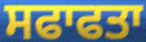
ਸਫਾਫਤਾ